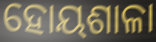
ହୋୟଶାଳା